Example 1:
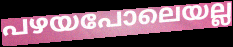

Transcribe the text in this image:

പഴയപോലെയല്ല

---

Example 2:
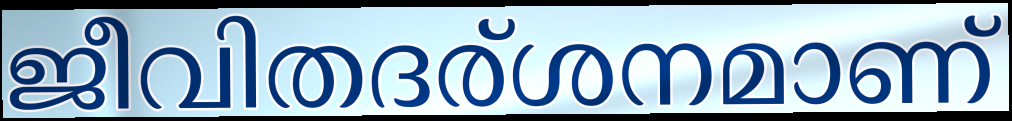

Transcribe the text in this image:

ജീവിതദര്ശനമാണ്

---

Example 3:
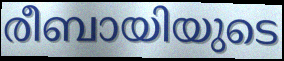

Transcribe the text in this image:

രീബായിയുടെ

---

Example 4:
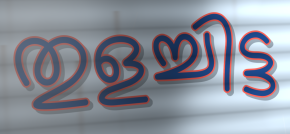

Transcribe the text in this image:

തുളച്ചിട്ട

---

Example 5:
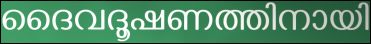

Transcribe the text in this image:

ദൈവദൂഷണത്തിനായി